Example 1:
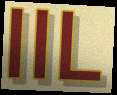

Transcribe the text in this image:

IIL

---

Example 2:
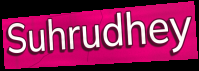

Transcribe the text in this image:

Suhrudhey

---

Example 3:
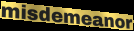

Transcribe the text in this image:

misdemeanor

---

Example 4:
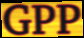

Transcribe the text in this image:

GPP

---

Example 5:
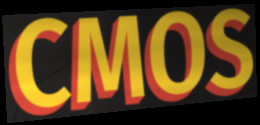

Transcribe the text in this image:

CMOS